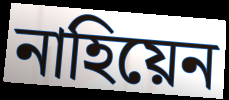
নাহিয়েন